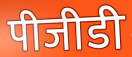
पीजीडी